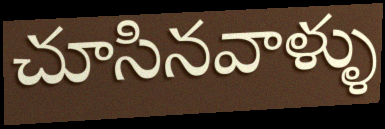
చూసినవాళ్ళు